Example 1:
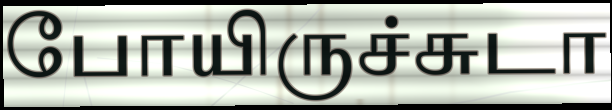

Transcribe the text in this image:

போயிருச்சுடா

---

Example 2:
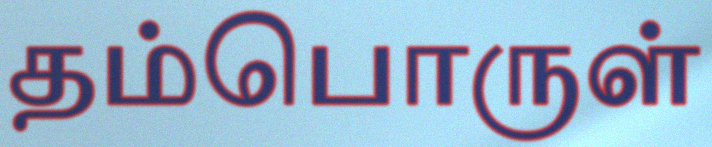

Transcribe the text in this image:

தம்பொருள்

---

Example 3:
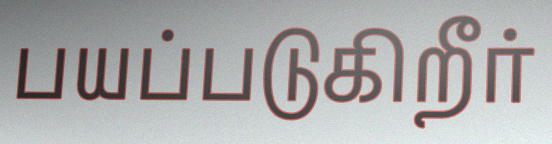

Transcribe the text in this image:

பயப்படுகிறீர்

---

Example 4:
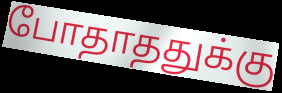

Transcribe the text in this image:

போதாததுக்கு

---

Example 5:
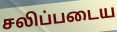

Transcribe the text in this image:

சலிப்படைய